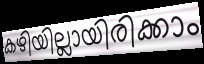
കഴിയില്ലായിരിക്കാം